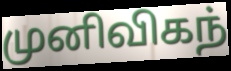
முனிவிகந்